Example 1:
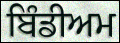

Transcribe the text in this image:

ਬਿੰਡੀਅਮ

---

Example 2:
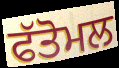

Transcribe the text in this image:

ਫੱਤੋਮਲ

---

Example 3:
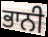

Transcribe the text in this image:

ਭਾਨੀ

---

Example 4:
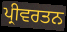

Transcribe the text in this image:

ਪ੍ਰੀਵਰਤਨ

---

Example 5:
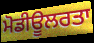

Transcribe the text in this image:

ਮੋਡੀਊਲਰਤਾ